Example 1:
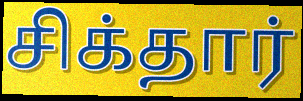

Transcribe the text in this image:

சிக்தார்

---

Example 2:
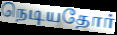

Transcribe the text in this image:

நெடியதோர்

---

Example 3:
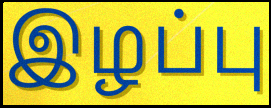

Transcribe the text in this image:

இழப்பு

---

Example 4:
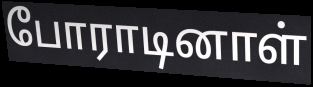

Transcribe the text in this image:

போராடினாள்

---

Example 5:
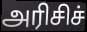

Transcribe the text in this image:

அரிசிச்